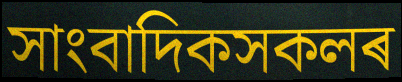
সাংবাদিকসকলৰ